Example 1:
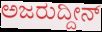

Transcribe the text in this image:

ಅಜರುದ್ದೀನ್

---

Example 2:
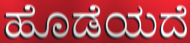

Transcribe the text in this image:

ಹೊಡೆಯದೆ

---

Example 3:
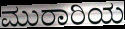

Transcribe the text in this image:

ಮುರಾರಿಯ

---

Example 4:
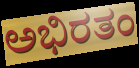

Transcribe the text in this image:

ಅಭಿರತಂ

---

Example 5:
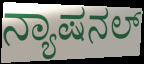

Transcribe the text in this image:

ನ್ಯಾಷನಲ್